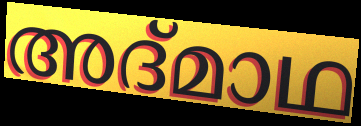
അദ്മാഥ